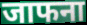
जाफना